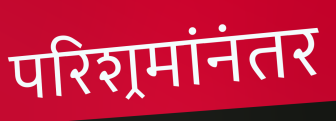
परिश्रमांनंतर